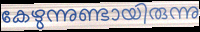
കേഴുന്നുണ്ടായിരുന്നു